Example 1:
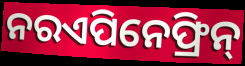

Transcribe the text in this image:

ନରଏପିନେଫ୍ରିନ୍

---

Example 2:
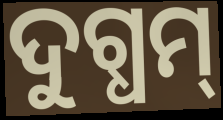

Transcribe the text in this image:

ଦୁଗ୍ଧମ୍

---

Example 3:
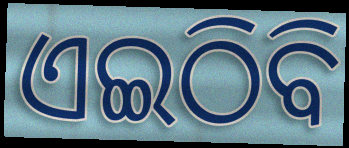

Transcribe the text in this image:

ଏଇଠିବି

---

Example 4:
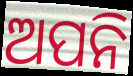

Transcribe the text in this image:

ଅପନି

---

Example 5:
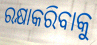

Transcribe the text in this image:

ରକ୍ଷାକରିବାକୁ